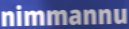
nimmannu